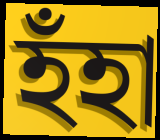
হঁহা